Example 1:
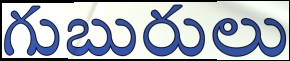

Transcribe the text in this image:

గుబురులు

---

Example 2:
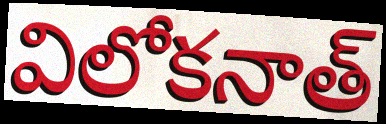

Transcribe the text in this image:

విలోకనాత్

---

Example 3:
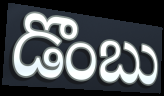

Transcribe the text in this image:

డొంబు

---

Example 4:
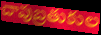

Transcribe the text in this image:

చావుబ్రతుకుల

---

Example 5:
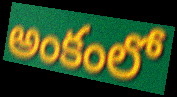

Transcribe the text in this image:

అంకంలో